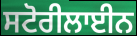
ਸਟੋਰੀਲਾਈਨ